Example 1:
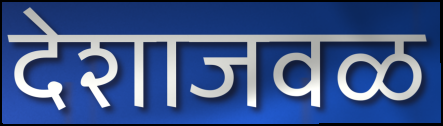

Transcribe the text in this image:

देशाजवळ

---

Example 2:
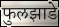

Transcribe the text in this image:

फुलझाडे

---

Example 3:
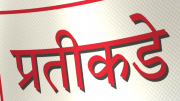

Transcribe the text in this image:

प्रतीकडे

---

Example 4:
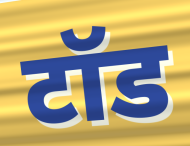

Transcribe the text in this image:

टॉड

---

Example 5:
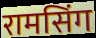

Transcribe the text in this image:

रामसिंग